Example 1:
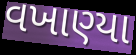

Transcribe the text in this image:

વખાણ્યા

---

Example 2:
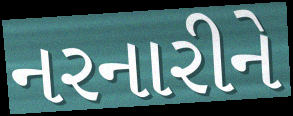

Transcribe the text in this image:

નરનારીને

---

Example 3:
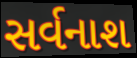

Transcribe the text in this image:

સર્વનાશ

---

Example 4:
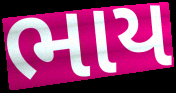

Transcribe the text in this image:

ભાય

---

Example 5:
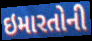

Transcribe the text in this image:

ઇમારતોની